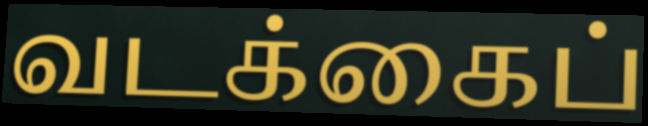
வடக்கைப்